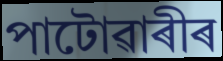
পাটোৱাৰীৰ